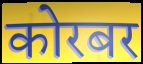
कोरबर